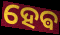
ହେଵ